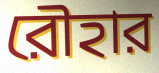
রৌহার